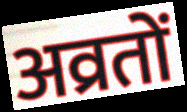
अव्रतों